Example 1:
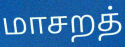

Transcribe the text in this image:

மாசறத்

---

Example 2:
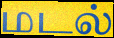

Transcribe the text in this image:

மடல்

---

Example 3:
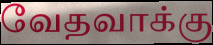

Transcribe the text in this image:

வேதவாக்கு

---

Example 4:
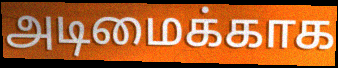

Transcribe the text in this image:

அடிமைக்காக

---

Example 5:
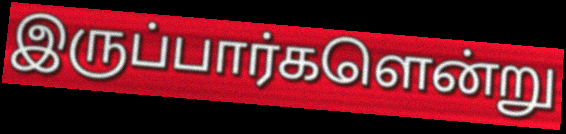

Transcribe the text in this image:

இருப்பார்களென்று